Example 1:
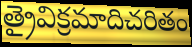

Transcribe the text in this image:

త్రైవిక్రమాదిచరితం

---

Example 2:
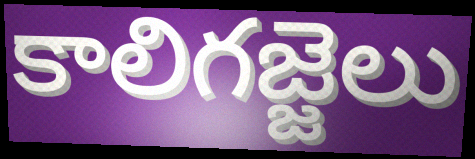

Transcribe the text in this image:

కాలిగజ్జెలు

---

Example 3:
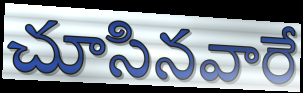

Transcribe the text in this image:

చూసినవారే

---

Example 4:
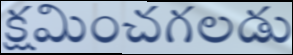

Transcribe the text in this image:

క్షమించగలడు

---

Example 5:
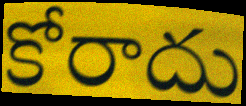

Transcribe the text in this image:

కోరాదు